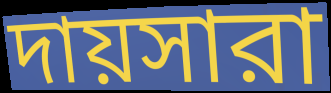
দায়সারা